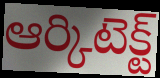
ఆర్కిటెక్ట్